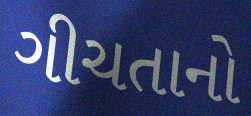
ગીચતાનો